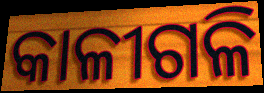
କାଳୀଗଳି